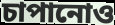
চাপানোও